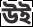
উই